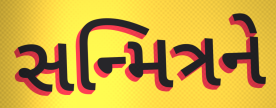
સન્મિત્રને